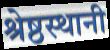
श्रेष्ठस्थानी